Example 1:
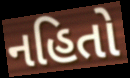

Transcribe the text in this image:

નહિતો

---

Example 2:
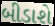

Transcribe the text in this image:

બીડાશે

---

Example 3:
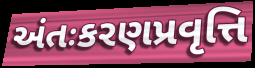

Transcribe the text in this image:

અંતઃકરણપ્રવૃત્તિ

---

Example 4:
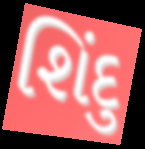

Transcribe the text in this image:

શિંદુ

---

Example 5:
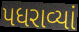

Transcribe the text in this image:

પધરાવ્યાં